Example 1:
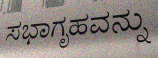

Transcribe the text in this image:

ಸಭಾಗೃಹವನ್ನು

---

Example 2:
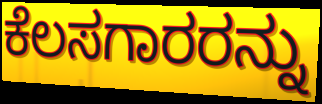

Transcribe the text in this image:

ಕೆಲಸಗಾರರನ್ನು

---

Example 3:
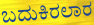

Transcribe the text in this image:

ಬದುಕಿರಲಾರ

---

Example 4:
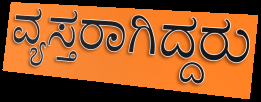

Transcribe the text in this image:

ವ್ಯಸ್ತರಾಗಿದ್ದರು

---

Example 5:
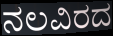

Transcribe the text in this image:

ನಲವಿರದ